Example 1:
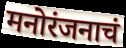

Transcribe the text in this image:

मनोरंजनाचं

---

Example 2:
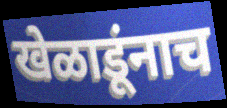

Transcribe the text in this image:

खेळाडूंनाच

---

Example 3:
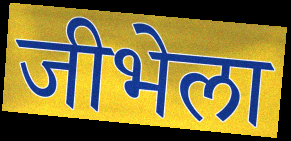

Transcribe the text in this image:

जीभेला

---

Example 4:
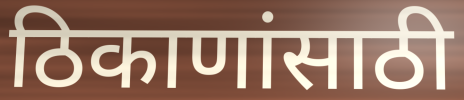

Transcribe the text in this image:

ठिकाणांसाठी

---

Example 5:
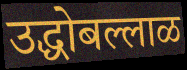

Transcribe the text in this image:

उद्धोबल्लाळ